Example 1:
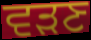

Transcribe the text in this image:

ਵੜਣ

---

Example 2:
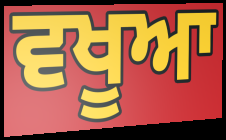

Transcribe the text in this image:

ਵਖੂਆ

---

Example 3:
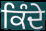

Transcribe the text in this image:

ਕਿੰਦੇ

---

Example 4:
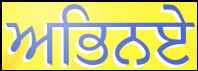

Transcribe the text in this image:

ਅਭਿਨਏ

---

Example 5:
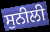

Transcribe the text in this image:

ਸੁਨੀਲੀ